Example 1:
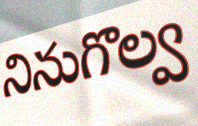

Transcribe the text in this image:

నినుగొల్వ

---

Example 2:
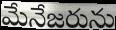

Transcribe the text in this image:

మేనేజరును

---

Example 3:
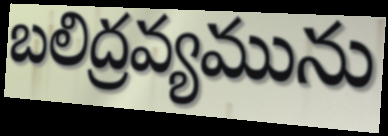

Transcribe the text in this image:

బలిద్రవ్యమును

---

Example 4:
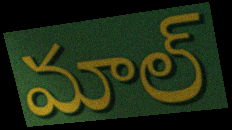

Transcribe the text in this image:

మాల్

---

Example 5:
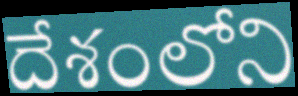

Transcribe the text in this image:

దేశంలోని